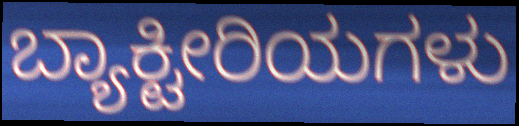
ಬ್ಯಾಕ್ಟೀರಿಯಗಳು